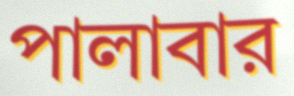
পালাবার